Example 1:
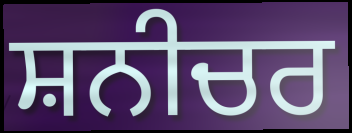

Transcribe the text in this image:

ਸ਼ਨੀਚਰ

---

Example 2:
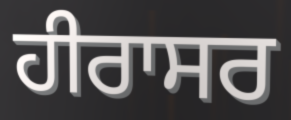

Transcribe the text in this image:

ਹੀਰਾਸਰ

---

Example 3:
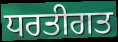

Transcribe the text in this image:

ਧਰਤੀਗਤ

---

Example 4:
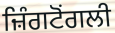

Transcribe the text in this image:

ਜ਼ਿੰਗਟੋਂਗਲੀ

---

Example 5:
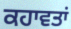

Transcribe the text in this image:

ਕਹਾਵਤਾਂ